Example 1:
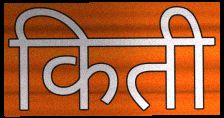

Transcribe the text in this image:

किती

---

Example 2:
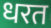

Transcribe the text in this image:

धरत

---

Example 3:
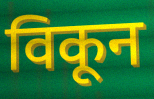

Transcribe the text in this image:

विकून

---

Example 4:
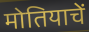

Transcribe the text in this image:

मोतियाचें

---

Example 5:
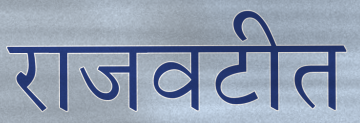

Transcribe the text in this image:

राजवटीत